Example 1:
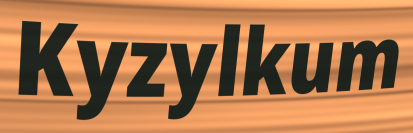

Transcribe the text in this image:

Kyzylkum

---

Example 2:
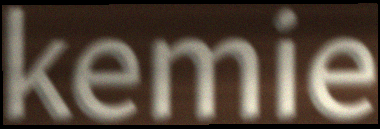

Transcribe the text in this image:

kemie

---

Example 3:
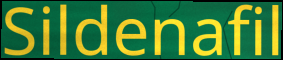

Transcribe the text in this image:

Sildenafil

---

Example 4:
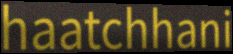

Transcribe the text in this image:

haatchhani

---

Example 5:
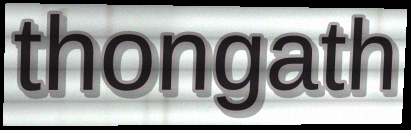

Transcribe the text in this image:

thongath